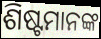
ଶିଷ୍ଟମାନଙ୍କ